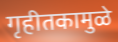
गृहीतकामुळे